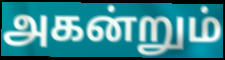
அகன்றும்